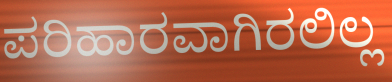
ಪರಿಹಾರವಾಗಿರಲಿಲ್ಲ